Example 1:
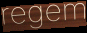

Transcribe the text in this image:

regem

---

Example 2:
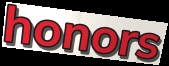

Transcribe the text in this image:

honors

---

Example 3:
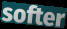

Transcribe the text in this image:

softer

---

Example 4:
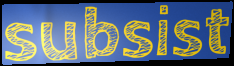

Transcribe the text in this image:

subsist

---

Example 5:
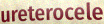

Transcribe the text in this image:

ureterocele